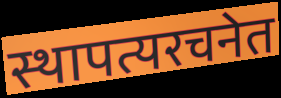
स्थापत्यरचनेत